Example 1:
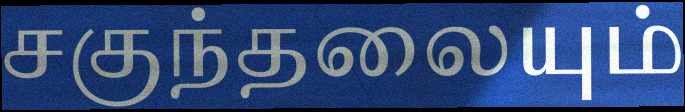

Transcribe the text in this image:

சகுந்தலையும்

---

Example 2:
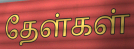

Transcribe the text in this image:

தேள்கள்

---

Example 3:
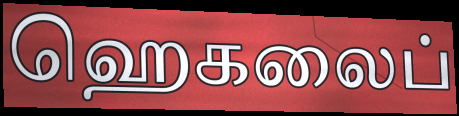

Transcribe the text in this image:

ஹெகலைப்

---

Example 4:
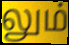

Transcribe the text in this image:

லும்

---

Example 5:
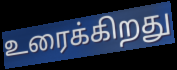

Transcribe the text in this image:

உரைக்கிறது